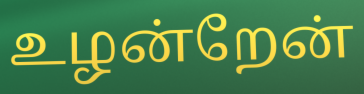
உழன்றேன்